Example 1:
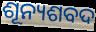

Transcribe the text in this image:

ଶୂନ୍ୟଶବଦ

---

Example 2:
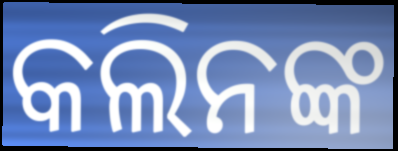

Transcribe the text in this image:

କଲିନଙ୍କ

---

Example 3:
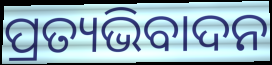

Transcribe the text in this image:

ପ୍ରତ୍ୟଭିବାଦନ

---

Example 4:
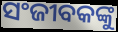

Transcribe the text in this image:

ସଂଜୀବକଙ୍କୁ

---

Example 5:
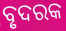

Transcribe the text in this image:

ବୃଦରକ